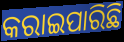
କରାଇପାରିଛି